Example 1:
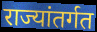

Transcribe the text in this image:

राज्यांतर्गत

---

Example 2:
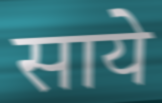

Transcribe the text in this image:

साये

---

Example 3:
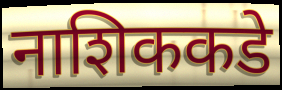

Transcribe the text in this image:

नाशिककडे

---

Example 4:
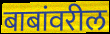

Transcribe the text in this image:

बाबांवरील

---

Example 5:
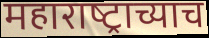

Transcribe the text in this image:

महाराष्ट्राच्याच